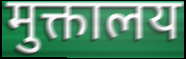
मुक्तालय